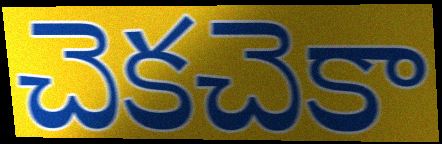
చెకచెకా